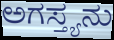
ಅಗಸ್ತ್ಯನು